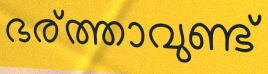
ഭര്ത്താവുണ്ട്